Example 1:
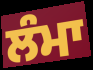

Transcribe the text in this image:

ਲੰਮਾ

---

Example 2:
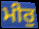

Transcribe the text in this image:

ਮੀਰੁ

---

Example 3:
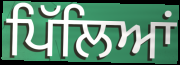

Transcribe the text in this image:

ਪਿੱਲਿਆਂ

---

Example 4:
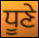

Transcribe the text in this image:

ਧੂਣੇ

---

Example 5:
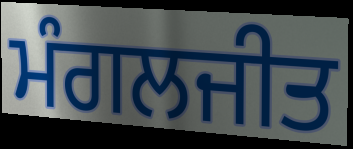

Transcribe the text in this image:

ਮੰਗਲਜੀਤ